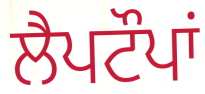
ਲੈਪਟੌਪਾਂ